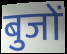
बुजों